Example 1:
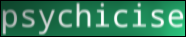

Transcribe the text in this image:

psychicise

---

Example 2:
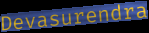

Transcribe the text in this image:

Devasurendra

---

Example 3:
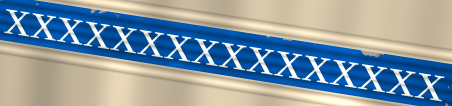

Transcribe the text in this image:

xxxxxxxxxxxxxxxx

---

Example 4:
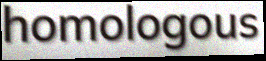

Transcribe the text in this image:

homologous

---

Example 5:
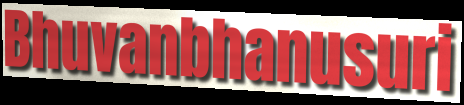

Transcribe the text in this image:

Bhuvanbhanusuri